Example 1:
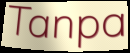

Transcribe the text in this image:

Tanpa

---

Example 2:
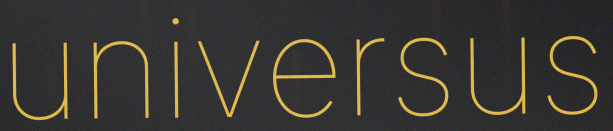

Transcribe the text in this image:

universus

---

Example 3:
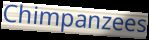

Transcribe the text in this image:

Chimpanzees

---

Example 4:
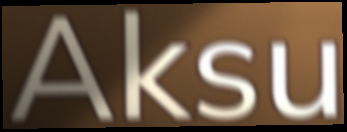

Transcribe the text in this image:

Aksu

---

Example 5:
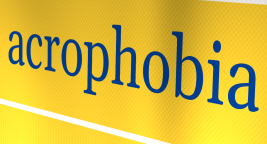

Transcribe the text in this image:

acrophobia